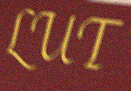
LUT